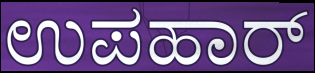
ಉಪಹಾರ್